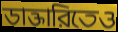
ডাক্তারিতেও